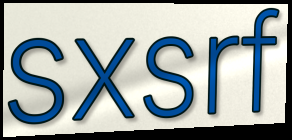
sxsrf